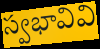
స్వభావివి